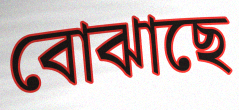
বোঝাছে